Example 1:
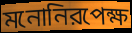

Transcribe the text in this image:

মনোনিরপেক্ষ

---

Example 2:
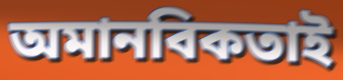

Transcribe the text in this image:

অমানবিকতাই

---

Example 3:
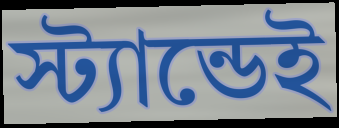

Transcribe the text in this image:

স্ট্যান্ডেই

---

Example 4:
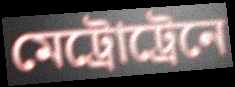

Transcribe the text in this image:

মেট্রোট্রেনে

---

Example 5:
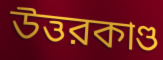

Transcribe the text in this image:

উত্তরকাণ্ড